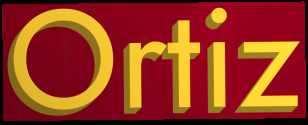
Ortiz